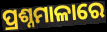
ପ୍ରଶ୍ନମାଳାରେ